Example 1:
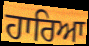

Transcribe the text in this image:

ਹਾਰਿਆ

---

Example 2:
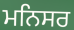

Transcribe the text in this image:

ਮਨਿਸਰ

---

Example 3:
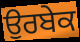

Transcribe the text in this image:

ਉਰਬੇਕ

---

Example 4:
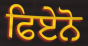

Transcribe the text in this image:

ਫਿਏਨੋ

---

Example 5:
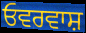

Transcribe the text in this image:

ਓਵਰਵਾਸ਼